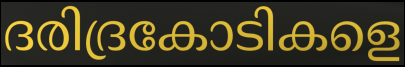
ദരിദ്രകോടികളെ